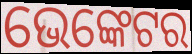
ଭେଙ୍କେଟର